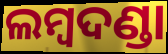
ଲମ୍ୱଦଣ୍ଡା